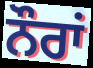
ਨੌਰਾਂ